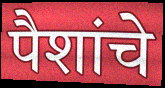
पैशांचे